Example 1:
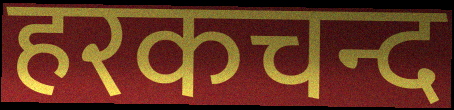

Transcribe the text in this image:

हरकचन्द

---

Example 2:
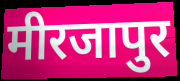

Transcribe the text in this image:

मीरजापुर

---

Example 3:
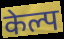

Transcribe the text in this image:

केल्प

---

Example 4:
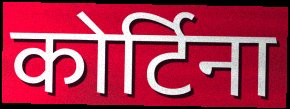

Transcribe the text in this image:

कोर्टिना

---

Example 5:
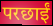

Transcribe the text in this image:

परछाईं